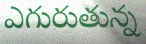
ఎగురుతున్న